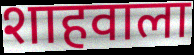
शाहवाला